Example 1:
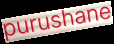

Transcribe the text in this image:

purushane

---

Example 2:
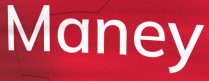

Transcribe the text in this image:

Maney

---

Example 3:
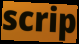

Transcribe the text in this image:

scrip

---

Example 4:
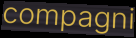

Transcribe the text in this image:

compagni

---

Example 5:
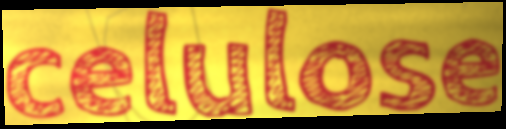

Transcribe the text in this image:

celulose